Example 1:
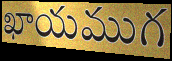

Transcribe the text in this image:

ఖాయముగ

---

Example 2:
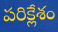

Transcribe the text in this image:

పరిక్లేశం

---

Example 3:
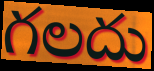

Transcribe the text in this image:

గలదు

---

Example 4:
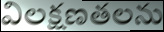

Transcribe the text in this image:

విలక్షణతలను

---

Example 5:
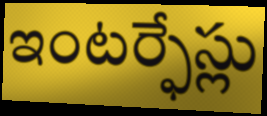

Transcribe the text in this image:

ఇంటర్ఫేస్లు